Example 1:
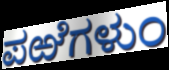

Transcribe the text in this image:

ಪಱೆಗಳುಂ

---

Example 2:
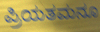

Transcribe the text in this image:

ಪ್ರಿಯತಮನೂ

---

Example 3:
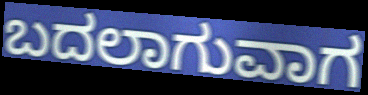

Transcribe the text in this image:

ಬದಲಾಗುವಾಗ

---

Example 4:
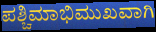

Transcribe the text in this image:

ಪಶ್ಚಿಮಾಭಿಮುಖವಾಗಿ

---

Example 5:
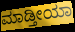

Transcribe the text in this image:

ಮಾಡ್ತೀಯಾ